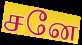
சனே